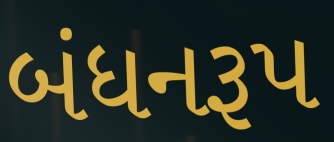
બંધનરૂપ